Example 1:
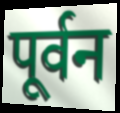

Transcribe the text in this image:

पूर्वन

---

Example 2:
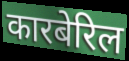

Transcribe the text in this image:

कारबेरिल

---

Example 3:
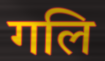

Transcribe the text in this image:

गलि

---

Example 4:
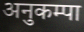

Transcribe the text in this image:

अनुकम्‍पा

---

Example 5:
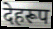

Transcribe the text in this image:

देहरूप